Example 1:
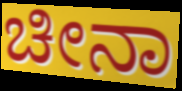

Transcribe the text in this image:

ಚೀನಾ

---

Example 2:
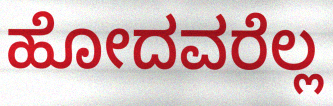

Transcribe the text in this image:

ಹೋದವರೆಲ್ಲ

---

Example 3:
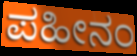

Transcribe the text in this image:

ಪಹೀನಂ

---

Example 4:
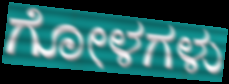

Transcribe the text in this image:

ಗೋಳಗಳು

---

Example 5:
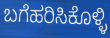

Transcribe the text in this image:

ಬಗೆಹರಿಸಿಕೊಳ್ಳಿ